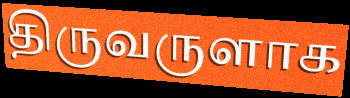
திருவருளாக